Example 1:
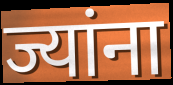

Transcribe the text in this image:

ज्यांना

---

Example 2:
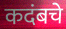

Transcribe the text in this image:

कदंबचे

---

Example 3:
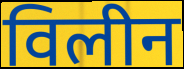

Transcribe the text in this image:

विलीन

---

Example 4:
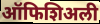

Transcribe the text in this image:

ऑफिशिअली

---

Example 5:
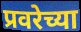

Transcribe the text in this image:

प्रवरेच्या